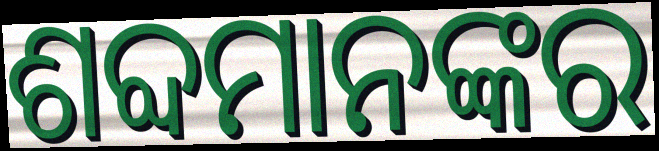
ଶବ୍ଦମାନଙ୍କର